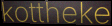
kottheke